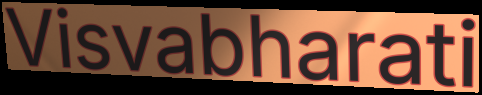
Visvabharati